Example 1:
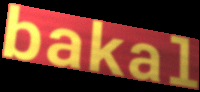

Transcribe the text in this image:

bakal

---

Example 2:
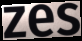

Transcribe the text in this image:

zes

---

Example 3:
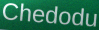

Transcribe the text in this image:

Chedodu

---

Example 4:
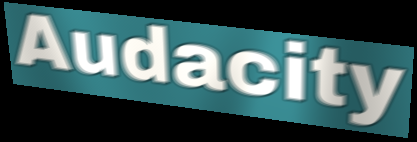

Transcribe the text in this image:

Audacity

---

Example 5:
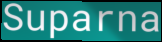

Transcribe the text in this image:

Suparna